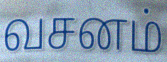
வசனம்